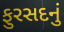
ફુરસદનું